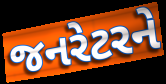
જનરેટરને